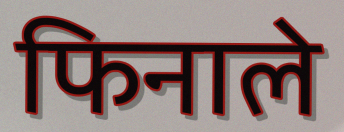
फिनाले